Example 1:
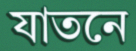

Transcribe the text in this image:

যাতনে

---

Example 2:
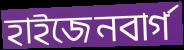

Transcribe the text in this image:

হাইজেনবার্গ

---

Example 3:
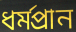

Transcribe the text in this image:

ধর্মপ্রান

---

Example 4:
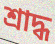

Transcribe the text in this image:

শ্রাদ্ধ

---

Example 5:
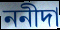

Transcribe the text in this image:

ননীদা